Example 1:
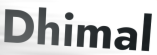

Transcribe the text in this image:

Dhimal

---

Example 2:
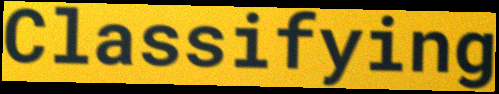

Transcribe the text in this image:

Classifying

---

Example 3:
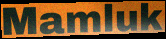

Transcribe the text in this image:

Mamluk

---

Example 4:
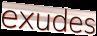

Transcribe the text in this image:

exudes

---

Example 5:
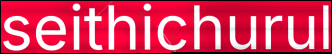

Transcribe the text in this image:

seithichurul